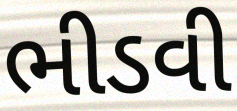
ભીડવી